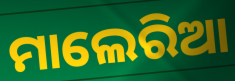
ମାଲେରିଆ